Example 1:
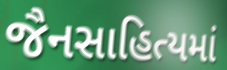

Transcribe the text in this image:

જૈનસાહિત્યમાં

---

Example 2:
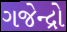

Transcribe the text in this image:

ગજેન્દ્રો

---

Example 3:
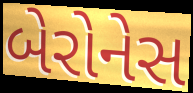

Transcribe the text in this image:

બેરોનેસ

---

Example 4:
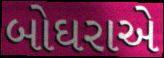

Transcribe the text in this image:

બોઘરાએ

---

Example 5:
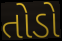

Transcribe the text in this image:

તોડો